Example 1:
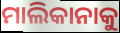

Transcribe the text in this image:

ମାଲିକାନାକୁ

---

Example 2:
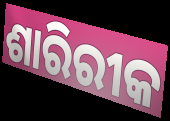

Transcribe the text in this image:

ଶାରିରୀକ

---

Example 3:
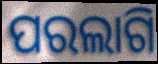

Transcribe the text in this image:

ପରଲାଗି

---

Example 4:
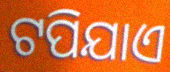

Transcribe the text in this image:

ଟପିଯାଏ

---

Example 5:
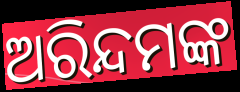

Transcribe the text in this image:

ଅରିନ୍ଦମଙ୍କ